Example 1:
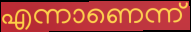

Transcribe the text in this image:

എന്നാണെന്ന്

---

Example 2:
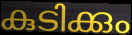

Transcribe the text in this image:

കുടിക്കും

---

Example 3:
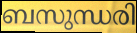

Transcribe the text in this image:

ബസുന്ധരി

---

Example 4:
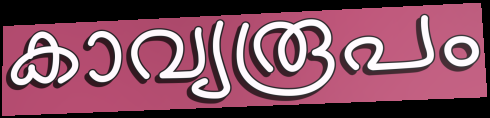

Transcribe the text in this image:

കാവ്യരൂപം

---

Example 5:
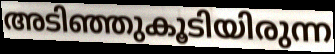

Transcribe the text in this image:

അടിഞ്ഞുകൂടിയിരുന്ന